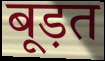
बूड़त